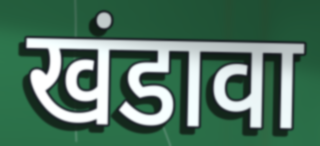
खंडावा